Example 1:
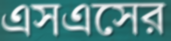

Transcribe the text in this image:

এসএসের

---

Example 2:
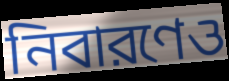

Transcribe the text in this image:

নিবারণেও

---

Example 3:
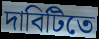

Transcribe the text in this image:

দাবিটিতে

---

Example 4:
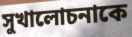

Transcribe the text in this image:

সুখালোচনাকে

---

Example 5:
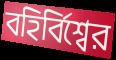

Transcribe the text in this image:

বহির্বিশ্বের